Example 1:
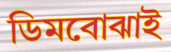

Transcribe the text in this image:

ডিমবোঝাই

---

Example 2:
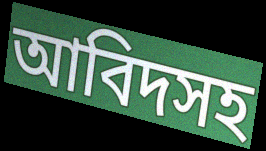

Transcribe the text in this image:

আবিদসহ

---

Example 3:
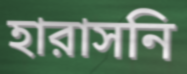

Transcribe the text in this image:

হারাসনি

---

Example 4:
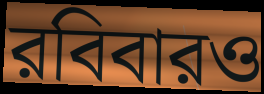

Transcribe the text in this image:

রবিবারও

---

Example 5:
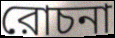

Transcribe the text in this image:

রোচনা